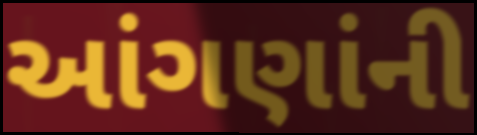
આંગણાંની